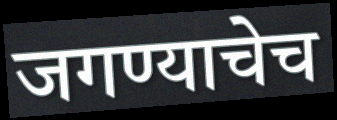
जगण्याचेच